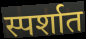
स्पर्शात